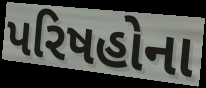
પરિષહોના